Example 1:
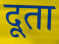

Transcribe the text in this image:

दूता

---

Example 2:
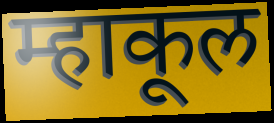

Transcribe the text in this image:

म्हाकूल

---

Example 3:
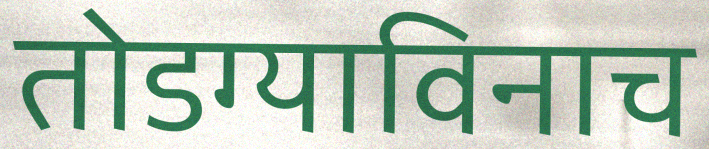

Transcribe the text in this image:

तोडग्याविनाच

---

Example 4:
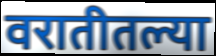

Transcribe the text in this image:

वरातीतल्या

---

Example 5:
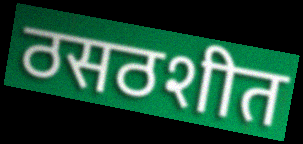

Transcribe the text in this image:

ठसठशीत